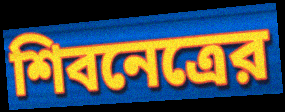
শিবনেত্রের